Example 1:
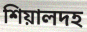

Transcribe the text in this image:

শিয়ালদহ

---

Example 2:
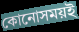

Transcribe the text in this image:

কোনোসময়ই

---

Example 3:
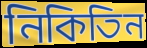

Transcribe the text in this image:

নিকিতিন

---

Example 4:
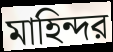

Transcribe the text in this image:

মাহিন্দর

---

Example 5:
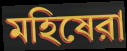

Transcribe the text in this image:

মহিষেরা